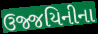
ઉજ્જયિનીના